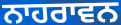
ਨਾਹਰਾਵਨ